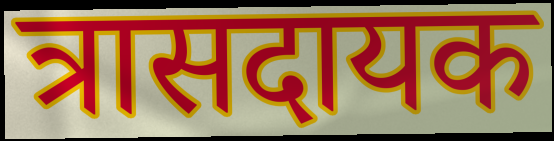
त्रासदायक